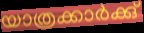
യാത്രക്കാർക്കു്